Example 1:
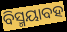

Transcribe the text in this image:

ବିସ୍ମୟାବହ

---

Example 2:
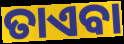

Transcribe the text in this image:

ତାଏବା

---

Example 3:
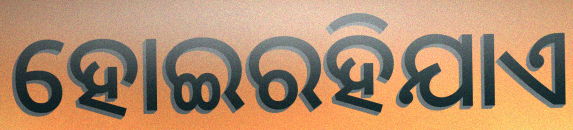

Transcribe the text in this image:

ହୋଇରହିଯାଏ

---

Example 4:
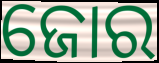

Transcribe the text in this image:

ଜୋର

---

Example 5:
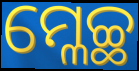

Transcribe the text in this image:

ମ୍ଳେଚ୍ଛ